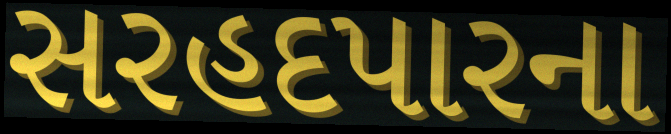
સરહદપારના